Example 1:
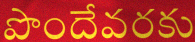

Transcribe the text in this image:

పొందేవరకు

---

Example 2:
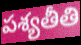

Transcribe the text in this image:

పశ్యతీతి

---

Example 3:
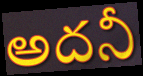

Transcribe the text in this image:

అదనీ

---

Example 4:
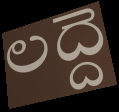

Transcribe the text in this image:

లద్దె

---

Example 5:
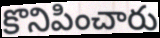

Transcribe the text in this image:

కొనిపించారు